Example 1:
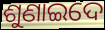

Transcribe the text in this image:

ଶୁଣାଇଦେ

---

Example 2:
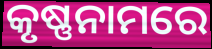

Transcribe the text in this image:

କୃଷ୍ଣନାମରେ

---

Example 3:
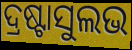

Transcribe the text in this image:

ଦ୍ରଷ୍ଟାସୁଲଭ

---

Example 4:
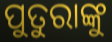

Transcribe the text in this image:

ପୁତୁରାଙ୍କୁ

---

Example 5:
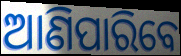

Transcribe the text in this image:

ଆଣିପାରିବେ